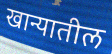
खान्यातील